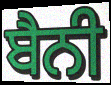
ਬੈਨੀ